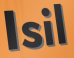
Isil